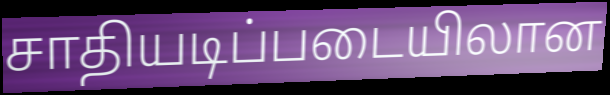
சாதியடிப்படையிலான